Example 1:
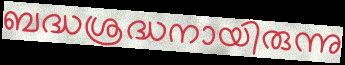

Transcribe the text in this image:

ബദ്ധശ്രദ്ധനായിരുന്നു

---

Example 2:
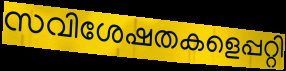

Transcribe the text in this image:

സവിശേഷതകളെപ്പറ്റി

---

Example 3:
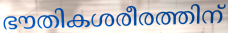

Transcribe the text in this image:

ഭൗതികശരീരത്തിന്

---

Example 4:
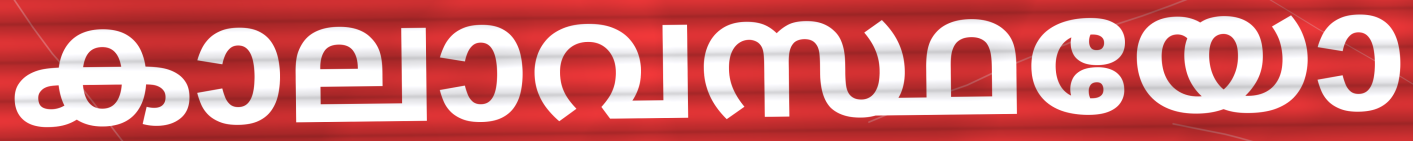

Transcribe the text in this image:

കാലാവസ്ഥയോ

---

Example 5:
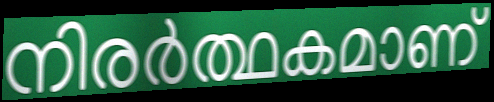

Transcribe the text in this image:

നിരർത്ഥകമാണ്